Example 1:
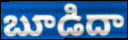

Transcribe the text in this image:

బూడిదా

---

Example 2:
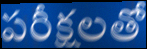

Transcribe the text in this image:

పరీక్షలతో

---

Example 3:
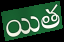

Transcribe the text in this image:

యిత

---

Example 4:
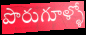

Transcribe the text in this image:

పొరుగూళ్ళో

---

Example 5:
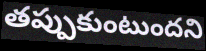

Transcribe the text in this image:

తప్పుకుంటుందని